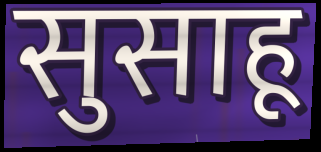
सुसाहू